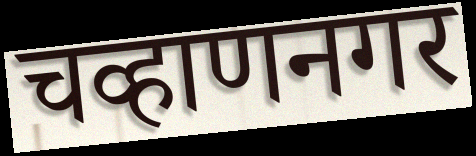
चव्हाणनगर